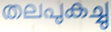
തലപുകച്ചു